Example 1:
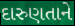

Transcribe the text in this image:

દારુણતાને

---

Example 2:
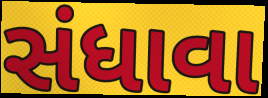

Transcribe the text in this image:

સંધાવા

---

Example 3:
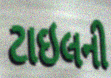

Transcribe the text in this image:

ટાઇલની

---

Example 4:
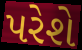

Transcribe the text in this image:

પરેશે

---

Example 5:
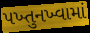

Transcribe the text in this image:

પખ્તુનખ્વામાં